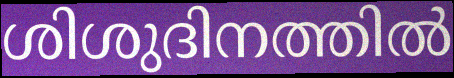
ശിശുദിനത്തിൽ